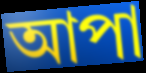
আপা